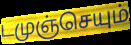
டமுஞ்செயும்